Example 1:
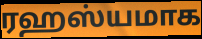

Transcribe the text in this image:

ரஹஸ்யமாக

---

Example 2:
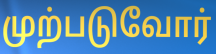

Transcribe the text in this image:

முற்படுவோர்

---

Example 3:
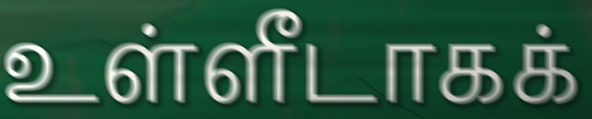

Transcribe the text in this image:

உள்ளீடாகக்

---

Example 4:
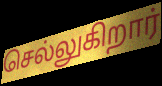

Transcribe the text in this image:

செல்லுகிறார்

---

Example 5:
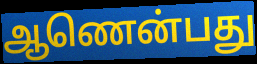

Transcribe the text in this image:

ஆணென்பது